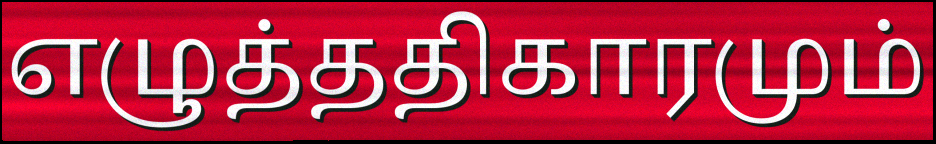
எழுத்ததிகாரமும்